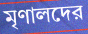
মৃণালদের